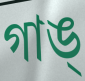
গাঙ্